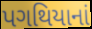
પગથિયાનાં